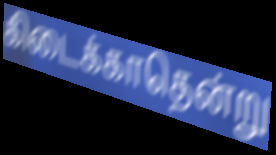
கிடைக்காதென்று